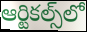
ఆర్టికల్స్‌లో